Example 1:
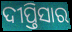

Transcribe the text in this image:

ଦୀପ୍ତିସାର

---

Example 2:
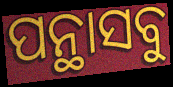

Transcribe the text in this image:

ପନ୍ଥାସବୁ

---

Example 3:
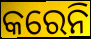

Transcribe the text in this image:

କରେନି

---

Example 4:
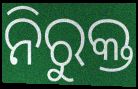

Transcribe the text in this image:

ନିରୁକ୍ତ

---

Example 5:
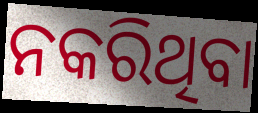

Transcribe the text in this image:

ନକରିଥିବା